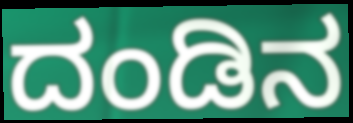
ದಂಡಿನ